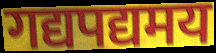
गद्यपद्यमय